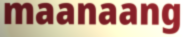
maanaang